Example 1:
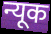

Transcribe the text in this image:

न्यूक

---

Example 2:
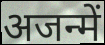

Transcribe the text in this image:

अजन्में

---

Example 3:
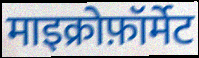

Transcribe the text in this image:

माइक्रोफ़ॉर्मेट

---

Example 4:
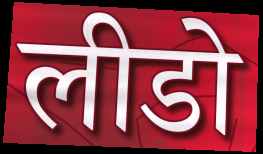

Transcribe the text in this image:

लीडो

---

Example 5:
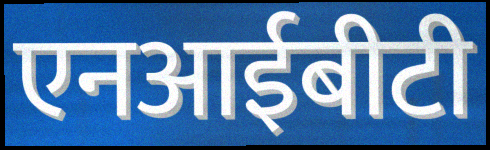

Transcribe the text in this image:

एनआईबीटी